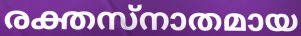
രക്തസ്നാതമായ